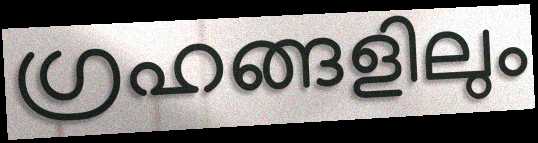
ഗ്രഹങ്ങളിലും